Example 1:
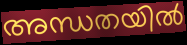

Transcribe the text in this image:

അന്ധതയിൽ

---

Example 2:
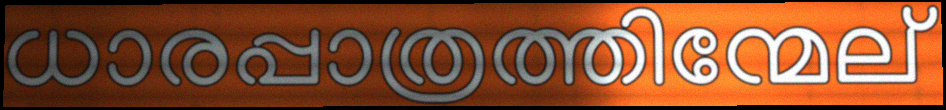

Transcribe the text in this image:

ധാരപ്പാത്രത്തിന്മേല്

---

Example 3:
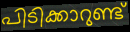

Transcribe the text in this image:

പിടിക്കാറുണ്ട്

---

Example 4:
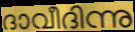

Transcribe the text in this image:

ദാവീദിന്നു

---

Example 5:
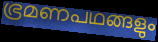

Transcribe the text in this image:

ഭ്രമണപഥങ്ങളും